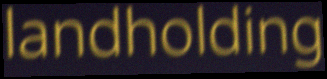
landholding